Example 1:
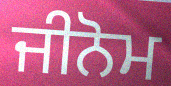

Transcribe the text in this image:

ਜੀਨੋਮ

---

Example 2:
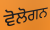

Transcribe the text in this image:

ਵੋਲੋਗਨ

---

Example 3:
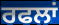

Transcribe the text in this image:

ਰਫਲਾਂ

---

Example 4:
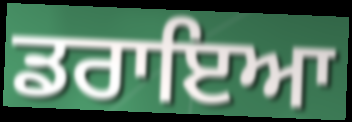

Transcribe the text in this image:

ਡਰਾਇਆ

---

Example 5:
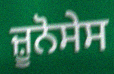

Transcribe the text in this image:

ਜ਼ੂਨੋਸੇਸ